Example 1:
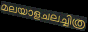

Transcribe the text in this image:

മലയാളചലച്ചിത്ര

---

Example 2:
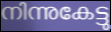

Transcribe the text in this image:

നിന്നുകേട്ടു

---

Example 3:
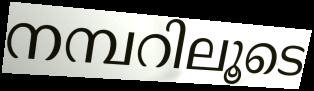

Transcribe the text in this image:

നമ്പറിലൂടെ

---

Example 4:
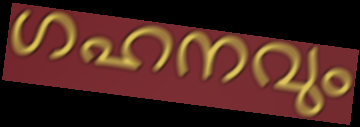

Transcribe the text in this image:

ഗഹനവും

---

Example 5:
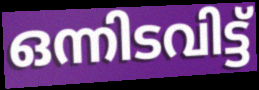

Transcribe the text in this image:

ഒന്നിടവിട്ട്